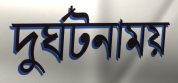
দুর্ঘটনাময়